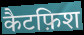
कैटफ़िश